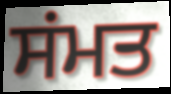
ਸਂਮਤ